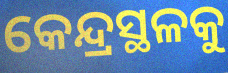
କେନ୍ଦ୍ରସ୍ଥଳକୁ